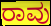
ರಾವು